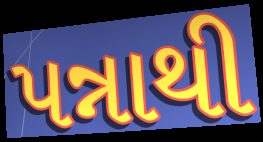
પન્નાથી